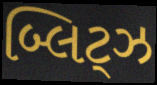
બ્લિટ્ઝ